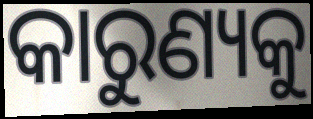
କାରୁଣ୍ୟକୁ